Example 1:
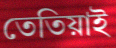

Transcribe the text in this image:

তেতিয়াই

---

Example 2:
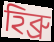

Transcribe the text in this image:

হিব্ৰু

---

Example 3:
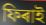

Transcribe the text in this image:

ফিৰাই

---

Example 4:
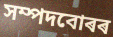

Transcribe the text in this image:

সম্পদবোৰৰ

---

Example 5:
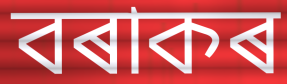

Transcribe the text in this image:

বৰাকৰ